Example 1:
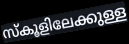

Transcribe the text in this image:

സ്കൂളിലേക്കുള്ള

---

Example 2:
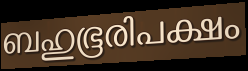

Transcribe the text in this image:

ബഹുഭൂരിപക്ഷം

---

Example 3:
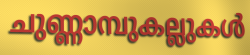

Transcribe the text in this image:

ചുണ്ണാമ്പുകല്ലുകൾ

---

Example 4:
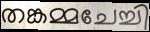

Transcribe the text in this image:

തങ്കമ്മചേച്ചി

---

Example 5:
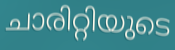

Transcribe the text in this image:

ചാരിറ്റിയുടെ